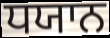
ਧਯਾਨ